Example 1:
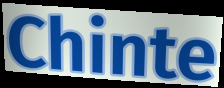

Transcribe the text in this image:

Chinte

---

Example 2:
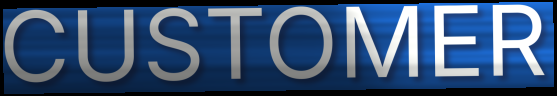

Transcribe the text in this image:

CUSTOMER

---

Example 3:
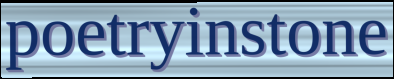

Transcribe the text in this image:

poetryinstone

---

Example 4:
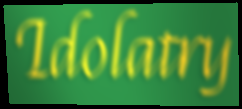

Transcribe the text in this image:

Idolatry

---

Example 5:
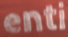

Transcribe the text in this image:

enti